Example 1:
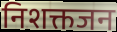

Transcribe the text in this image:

निशक्तजन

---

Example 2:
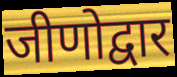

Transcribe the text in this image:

जीणोद्वार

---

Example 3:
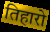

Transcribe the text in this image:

तिहारो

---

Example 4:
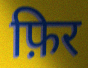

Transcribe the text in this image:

फ़िर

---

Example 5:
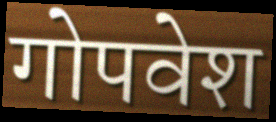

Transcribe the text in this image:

गोपवेश